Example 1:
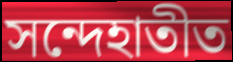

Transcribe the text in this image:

সন্দেহাতীত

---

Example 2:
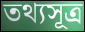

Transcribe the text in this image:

তথ্যসূত্র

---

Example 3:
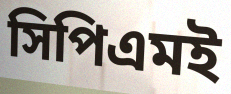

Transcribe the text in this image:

সিপিএমই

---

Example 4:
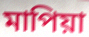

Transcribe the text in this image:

মাপিয়া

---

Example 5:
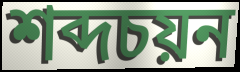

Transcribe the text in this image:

শব্দচয়ন